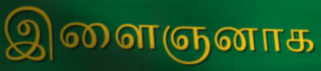
இளைஞனாக